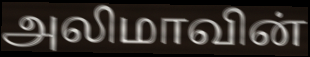
அலிமாவின்